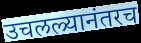
उचलल्यानंतरच